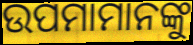
ଉପମାମାନଙ୍କୁ